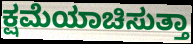
ಕ್ಷಮೆಯಾಚಿಸುತ್ತಾ